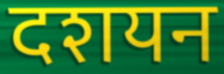
दशयन